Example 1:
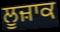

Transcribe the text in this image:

ਲੂਜ਼ਾਕ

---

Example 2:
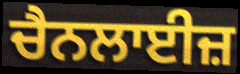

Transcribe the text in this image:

ਚੈਨਲਾਈਜ਼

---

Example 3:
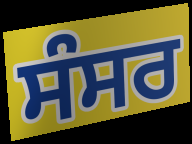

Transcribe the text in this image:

ਸੰਸਰ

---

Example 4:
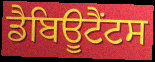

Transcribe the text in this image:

ਡੈਬਿਊਟੈਂਟਸ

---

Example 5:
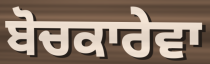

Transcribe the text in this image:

ਬੋਚਕਾਰੇਵਾ